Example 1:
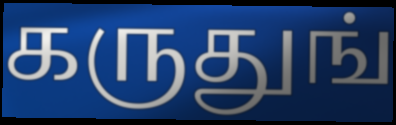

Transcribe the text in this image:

கருதுங்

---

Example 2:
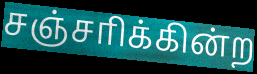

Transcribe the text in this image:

சஞ்சரிக்கின்ற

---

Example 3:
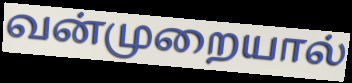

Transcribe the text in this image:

வன்முறையால்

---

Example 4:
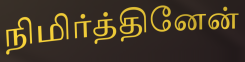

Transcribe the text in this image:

நிமிர்த்தினேன்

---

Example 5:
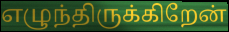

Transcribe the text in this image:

எழுந்திருக்கிறேன்